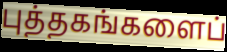
புத்தகங்களைப்